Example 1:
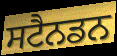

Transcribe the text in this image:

ਸਟੈਨਡਨ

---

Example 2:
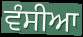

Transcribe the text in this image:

ਵੰਸੀਆ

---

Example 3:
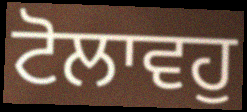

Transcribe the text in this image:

ਟੋਲਾਵਹੁ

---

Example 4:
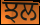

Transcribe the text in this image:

ਝਲ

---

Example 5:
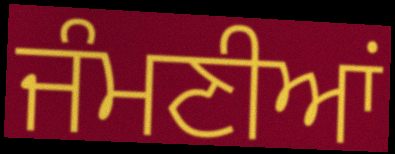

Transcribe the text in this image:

ਜੰਮਣੀਆਂ